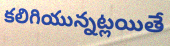
కలిగియున్నట్లయితే